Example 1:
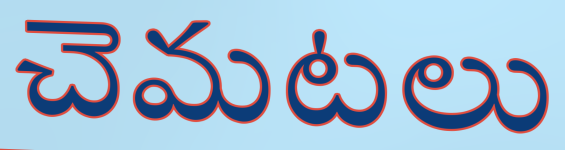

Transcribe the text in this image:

చెమటలు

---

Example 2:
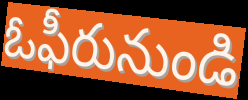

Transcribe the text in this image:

ఓఫీరునుండి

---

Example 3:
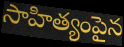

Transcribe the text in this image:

సాహిత్యంపైన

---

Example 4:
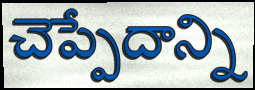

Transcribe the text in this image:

చెప్పేదాన్ని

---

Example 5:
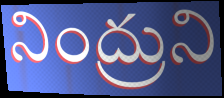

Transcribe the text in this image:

నింద్రుని